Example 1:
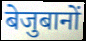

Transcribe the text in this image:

बेजुबानों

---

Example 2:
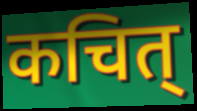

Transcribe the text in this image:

कचित्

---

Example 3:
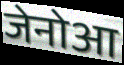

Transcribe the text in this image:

जेनोआ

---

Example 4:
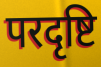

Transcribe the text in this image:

परदृष्टि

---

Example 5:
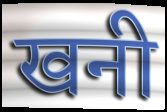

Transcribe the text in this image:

खनी